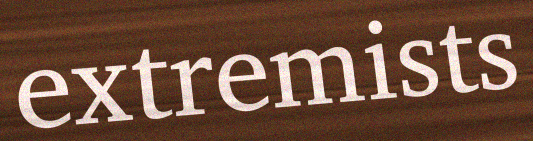
extremists